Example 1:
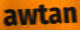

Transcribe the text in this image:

awtan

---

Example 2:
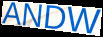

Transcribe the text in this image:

ANDW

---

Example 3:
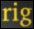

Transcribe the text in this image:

rig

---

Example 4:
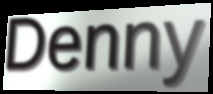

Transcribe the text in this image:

Denny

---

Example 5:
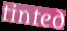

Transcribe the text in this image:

tinted